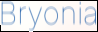
Bryonia